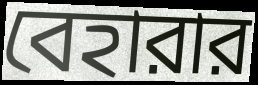
বেহারার